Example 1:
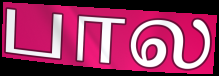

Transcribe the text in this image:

பால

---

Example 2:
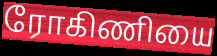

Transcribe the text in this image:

ரோகிணியை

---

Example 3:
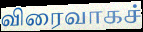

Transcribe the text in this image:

விரைவாகச்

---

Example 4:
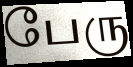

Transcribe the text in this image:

பேரு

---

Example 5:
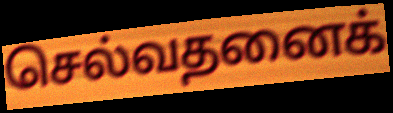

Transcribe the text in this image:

செல்வதனைக்